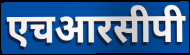
एचआरसीपी